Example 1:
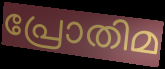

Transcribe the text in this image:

പ്രോതിമ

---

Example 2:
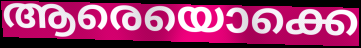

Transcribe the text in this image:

ആരെയൊക്കെ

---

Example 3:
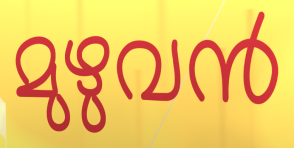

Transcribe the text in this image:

മുഴുവൻ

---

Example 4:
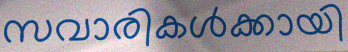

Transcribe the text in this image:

സവാരികൾക്കായി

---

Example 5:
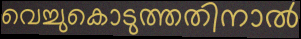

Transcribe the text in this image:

വെച്ചുകൊടുത്തതിനാൽ